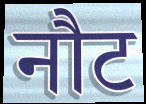
नौट